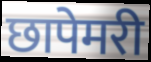
छापेमरी